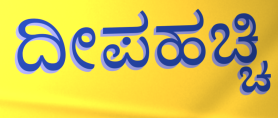
ದೀಪಹಚ್ಚಿ